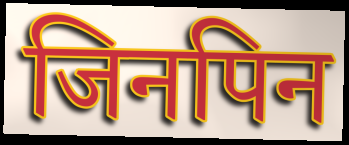
जिनपिन